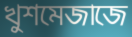
খুশমেজাজে